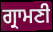
ਗ੍ਰਾਮਣੀ